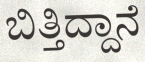
ಬಿತ್ತಿದ್ದಾನೆ